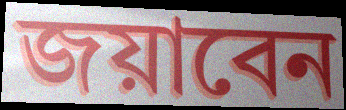
জয়াবেন